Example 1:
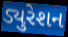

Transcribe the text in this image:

ડ્યુરેશન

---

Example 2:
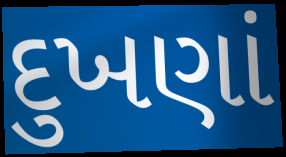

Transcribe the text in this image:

દુખણાં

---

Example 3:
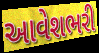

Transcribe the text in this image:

આવેશભરી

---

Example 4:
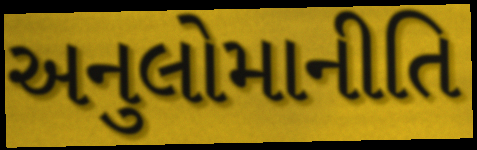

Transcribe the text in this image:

અનુલોમાનીતિ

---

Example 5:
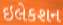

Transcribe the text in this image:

ઇલેકશન